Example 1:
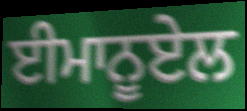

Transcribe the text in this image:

ਈਮਾਨੂਏਲ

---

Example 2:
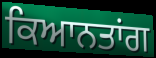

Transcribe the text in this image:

ਕਿਆਨਤਾਂਗ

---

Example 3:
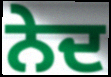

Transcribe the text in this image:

ਨੇਦ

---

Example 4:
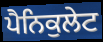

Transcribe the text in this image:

ਪੈਨਿਕੁਲੇਟ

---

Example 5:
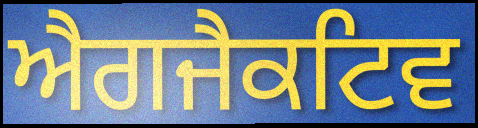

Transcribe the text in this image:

ਐਗਜੈਕਟਿਵ